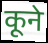
कूने